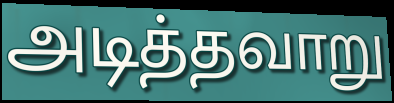
அடித்தவாறு